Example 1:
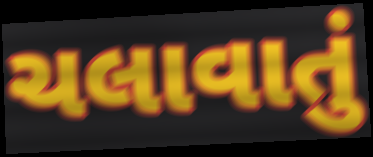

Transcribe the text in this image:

ચલાવાતું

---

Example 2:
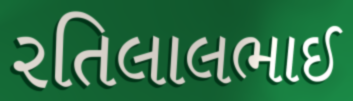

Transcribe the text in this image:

રતિલાલભાઈ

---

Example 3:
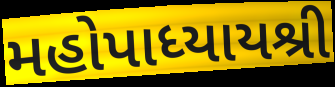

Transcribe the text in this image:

મહોપાધ્યાયશ્રી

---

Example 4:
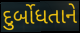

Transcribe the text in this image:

દુર્બોધતાને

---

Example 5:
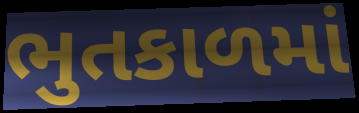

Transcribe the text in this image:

ભુતકાળમાં